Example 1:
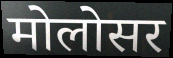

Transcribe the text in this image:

मोलोसर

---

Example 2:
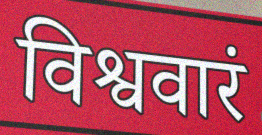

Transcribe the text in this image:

विश्ववारं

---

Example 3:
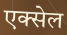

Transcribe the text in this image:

एक्‍सेल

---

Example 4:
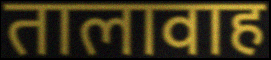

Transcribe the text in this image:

तालावाह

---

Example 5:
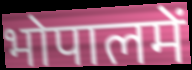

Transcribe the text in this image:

भोपालमें